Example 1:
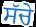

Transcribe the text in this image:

ਸੱਚੇ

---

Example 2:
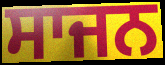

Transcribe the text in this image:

ਸਾਜਨ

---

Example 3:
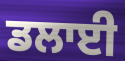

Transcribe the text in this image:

ਡਲਾਈ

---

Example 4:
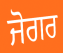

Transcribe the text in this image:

ਜੋਗਰ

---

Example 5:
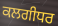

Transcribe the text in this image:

ਕਲਗੀਧਰ